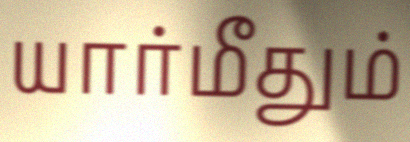
யார்மீதும்